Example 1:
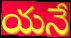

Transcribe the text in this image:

యనే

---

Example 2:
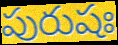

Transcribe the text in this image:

పురుషః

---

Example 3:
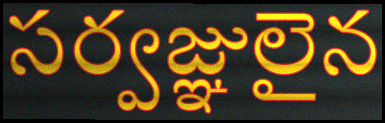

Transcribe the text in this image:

సర్వజ్ఞులైన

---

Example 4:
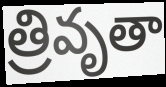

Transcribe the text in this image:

త్రివృతా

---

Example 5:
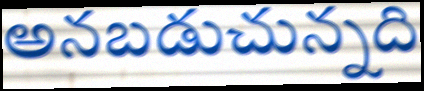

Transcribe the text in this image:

అనబడుచున్నది